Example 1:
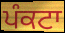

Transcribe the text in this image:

ਪੰਕਟਾ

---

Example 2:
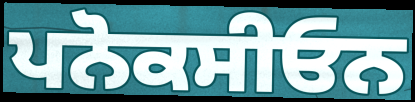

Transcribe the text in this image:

ਪਨੋਕਸੀਓਨ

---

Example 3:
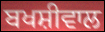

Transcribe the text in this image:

ਬਖਸ਼ੀਵਾਲ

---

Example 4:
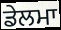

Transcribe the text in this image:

ਡੇਲਮਾ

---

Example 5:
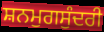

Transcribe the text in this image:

ਸ਼ਨਮੁਗਸੁੰਦਰੀ